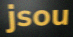
jsou